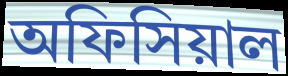
অফিসিয়াল